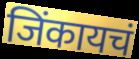
जिंकायचं